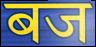
बज